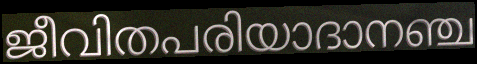
ജീവിതപരിയാദാനഞ്ച